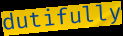
dutifully